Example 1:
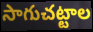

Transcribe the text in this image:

సాగుచట్టాల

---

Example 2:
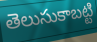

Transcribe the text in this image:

తెలుసుకాబట్టి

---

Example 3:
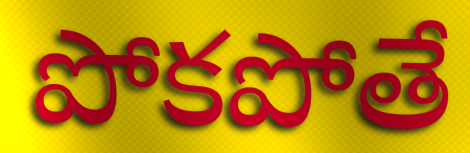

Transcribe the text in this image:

పోకపోతే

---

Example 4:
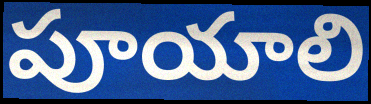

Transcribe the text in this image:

పూయాలి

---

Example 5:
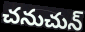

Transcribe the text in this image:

చనుచున్